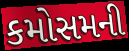
કમોસમની